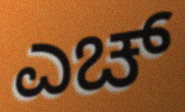
ಎಚ್